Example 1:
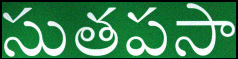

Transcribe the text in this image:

సుతపసా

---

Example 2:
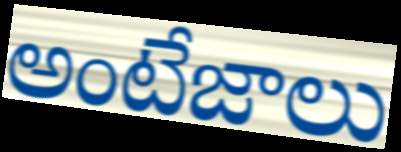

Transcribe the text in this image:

అంటేజాలు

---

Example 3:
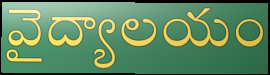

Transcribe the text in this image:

వైద్యాలయం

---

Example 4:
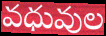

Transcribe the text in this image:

వధువుల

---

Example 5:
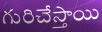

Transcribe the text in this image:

గురిచేస్తాయి